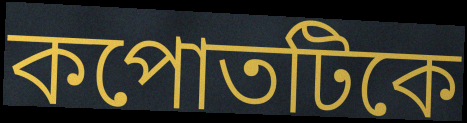
কপোতটিকে